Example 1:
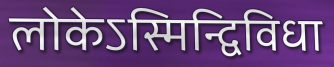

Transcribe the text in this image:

लोकेऽस्मिन्द्विविधा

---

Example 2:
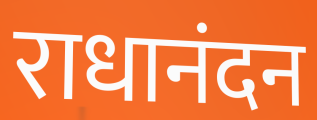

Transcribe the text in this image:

राधानंदन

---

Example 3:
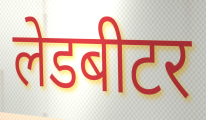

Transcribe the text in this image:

लेडबीटर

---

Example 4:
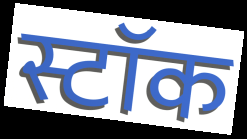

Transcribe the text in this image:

स्टॉक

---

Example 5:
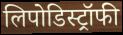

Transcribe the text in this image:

लिपोडिस्ट्रॉफी